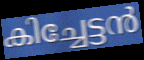
കിച്ചേട്ടൻ